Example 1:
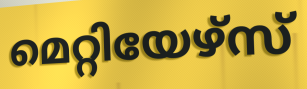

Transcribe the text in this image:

മെറ്റിയേഴ്സ്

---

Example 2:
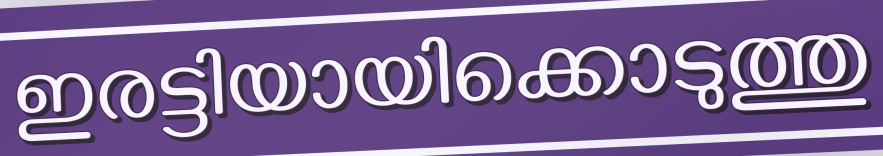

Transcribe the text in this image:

ഇരട്ടിയായിക്കൊടുത്തു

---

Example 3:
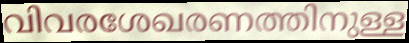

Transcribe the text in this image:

വിവരശേഖരണത്തിനുള്ള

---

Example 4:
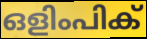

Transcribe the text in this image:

ഒളിംപിക്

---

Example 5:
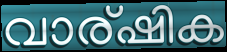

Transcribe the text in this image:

വാര്ഷിക